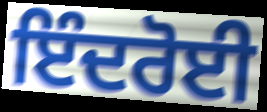
ਇੰਦਰੋਈ